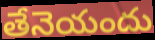
తేనెయందు